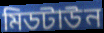
মিডটাউন